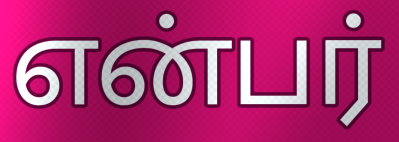
என்பர்